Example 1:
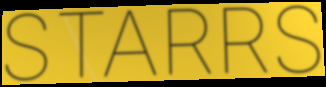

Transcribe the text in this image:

STARRS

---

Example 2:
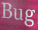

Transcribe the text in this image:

Bug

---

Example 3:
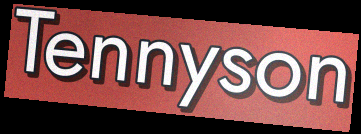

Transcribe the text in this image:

Tennyson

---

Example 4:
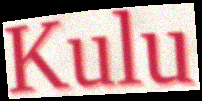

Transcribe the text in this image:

Kulu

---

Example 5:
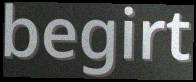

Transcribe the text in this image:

begirt